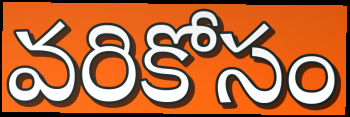
వరికోసం